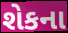
શેકના